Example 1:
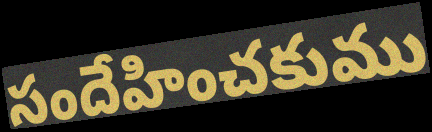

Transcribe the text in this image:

సందేహించకుము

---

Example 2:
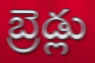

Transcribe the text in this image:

బ్రెడ్లు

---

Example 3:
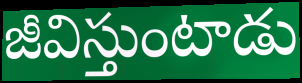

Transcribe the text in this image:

జీవిస్తుంటాడు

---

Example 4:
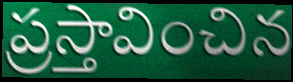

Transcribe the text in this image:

ప్రస్తావించిన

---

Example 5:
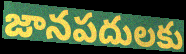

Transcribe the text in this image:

జానపదులకు